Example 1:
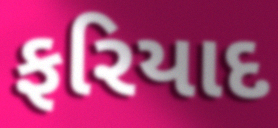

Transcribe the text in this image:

ફરિયાદ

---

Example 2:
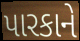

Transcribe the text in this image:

પારકાને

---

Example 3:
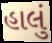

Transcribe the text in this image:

હાલું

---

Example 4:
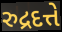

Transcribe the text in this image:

રુદ્રદત્તે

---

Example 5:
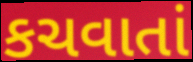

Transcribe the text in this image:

કચવાતાં